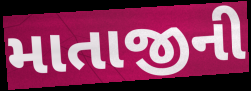
માતાજીની